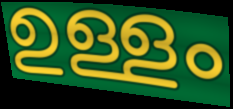
ഉള്ളം